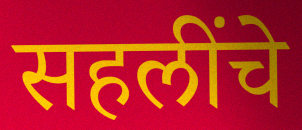
सहलींचे